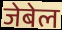
जेबेल